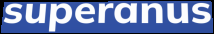
superanus